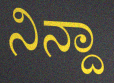
ನಿನ್ದಾ